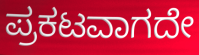
ಪ್ರಕಟವಾಗದೇ